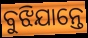
ବୁଝିଯାନ୍ତେ